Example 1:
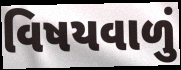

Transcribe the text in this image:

વિષયવાળું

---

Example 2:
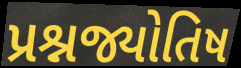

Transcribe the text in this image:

પ્રશ્નજ્યોતિષ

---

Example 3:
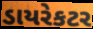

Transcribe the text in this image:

ડાયરેકટર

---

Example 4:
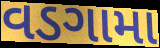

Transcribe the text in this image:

વડગામા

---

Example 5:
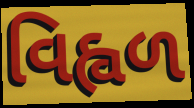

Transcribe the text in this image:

વિહ્વળ